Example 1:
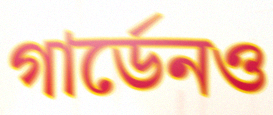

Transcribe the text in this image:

গার্ডেনও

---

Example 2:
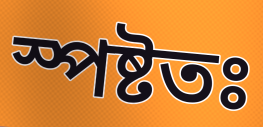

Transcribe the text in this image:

স্পষ্টতঃ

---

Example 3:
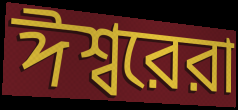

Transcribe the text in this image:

ঈশ্বরেরা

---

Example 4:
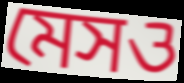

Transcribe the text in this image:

মেসও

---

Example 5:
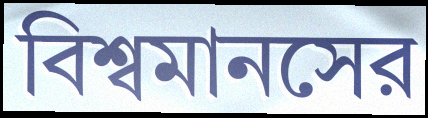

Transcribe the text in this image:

বিশ্বমানসের